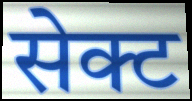
सेक्ट